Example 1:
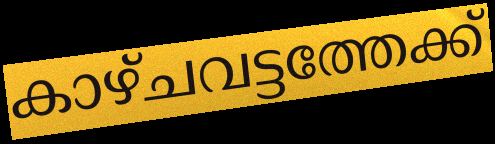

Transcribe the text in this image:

കാഴ്ചവട്ടത്തേക്ക്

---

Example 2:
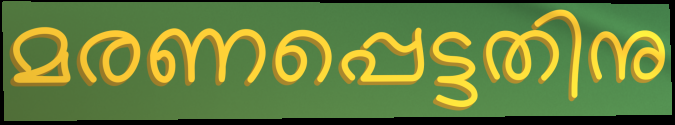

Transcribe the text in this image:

മരണപ്പെട്ടതിനു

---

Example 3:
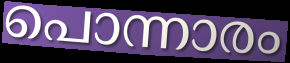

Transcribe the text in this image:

പൊന്നാരം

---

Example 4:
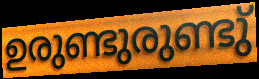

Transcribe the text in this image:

ഉരുണ്ടുരുണ്ടു്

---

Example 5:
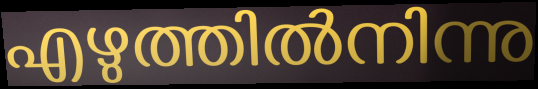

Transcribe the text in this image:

എഴുത്തിൽനിന്നു